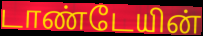
டாண்டேயின்